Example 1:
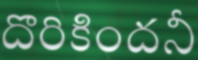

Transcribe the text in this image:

దొరికిందనీ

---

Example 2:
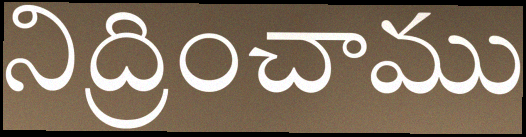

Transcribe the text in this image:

నిద్రించాము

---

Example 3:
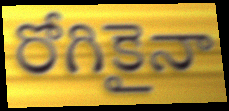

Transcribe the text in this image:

రోగికైనా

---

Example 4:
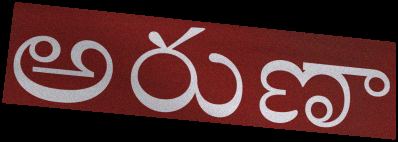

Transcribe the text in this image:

అరుణా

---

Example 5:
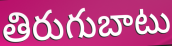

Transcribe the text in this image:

తిరుగుబాటు